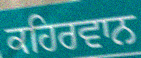
ਕਹਿਰਵਾਨ